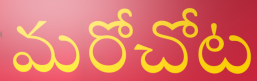
మరోచోట